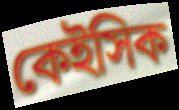
কেইসিক